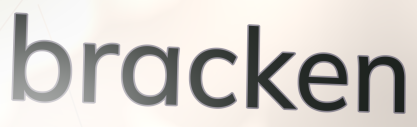
bracken